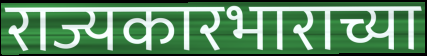
राज्यकारभाराच्या